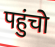
पहुंचो